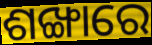
ଶଙ୍ଖାରେ